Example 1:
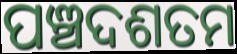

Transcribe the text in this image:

ପଞ୍ଚଦଶତମ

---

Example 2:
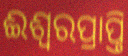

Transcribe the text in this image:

ଈଶ୍ଵରପ୍ରାପ୍ତି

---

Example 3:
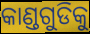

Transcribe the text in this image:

କାଣ୍ଡଗୁଡିକୁ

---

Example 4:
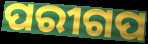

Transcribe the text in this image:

ପରୀଗପ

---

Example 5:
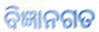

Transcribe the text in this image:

ବିଜ୍ଞାନଗତ